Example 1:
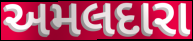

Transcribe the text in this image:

અમલદારા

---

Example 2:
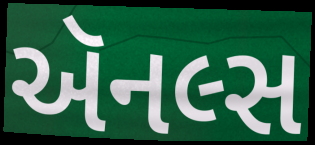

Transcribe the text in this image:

ઍનલ્સ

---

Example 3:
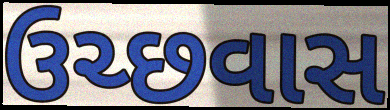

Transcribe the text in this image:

ઉચ્છવાસ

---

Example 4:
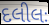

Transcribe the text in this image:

દલીલઃ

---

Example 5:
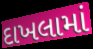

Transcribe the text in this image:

દાખલામાં